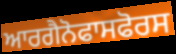
ਆਰਗੈਨੋਫਾਸਫੋਰਸ